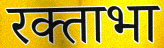
रक्ताभा